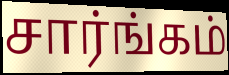
சார்ங்கம்